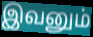
இவனும்